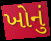
ખોનું